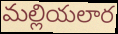
మల్లియలార